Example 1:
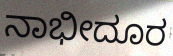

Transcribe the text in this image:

ನಾಭೀದೂರ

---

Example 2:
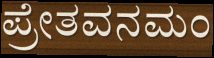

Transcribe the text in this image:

ಪ್ರೇತವನಮಂ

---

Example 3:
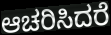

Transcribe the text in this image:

ಆಚರಿಸಿದರೆ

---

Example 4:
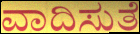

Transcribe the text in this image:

ವಾದಿಸುತೆ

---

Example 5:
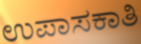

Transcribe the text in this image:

ಉಪಾಸಕಾತಿ